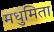
मधुमिता